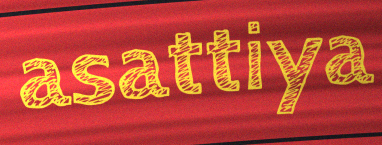
asattiya